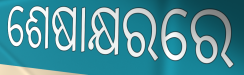
ଶେଷାକ୍ଷରରେ